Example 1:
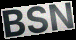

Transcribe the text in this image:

BSN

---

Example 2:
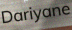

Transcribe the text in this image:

Dariyane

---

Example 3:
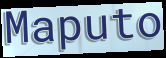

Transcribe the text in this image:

Maputo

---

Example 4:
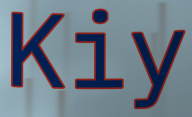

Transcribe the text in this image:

Kiy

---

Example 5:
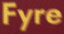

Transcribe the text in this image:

Fyre